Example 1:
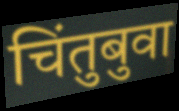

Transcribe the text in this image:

चिंतुबुवा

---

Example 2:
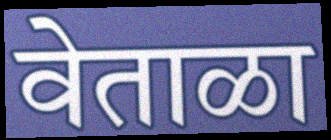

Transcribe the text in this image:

वेताळा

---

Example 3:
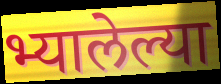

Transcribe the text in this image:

भ्यालेल्या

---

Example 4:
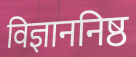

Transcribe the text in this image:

विज्ञाननिष्ठ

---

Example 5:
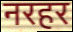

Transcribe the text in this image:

नरहर